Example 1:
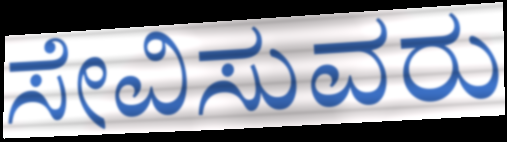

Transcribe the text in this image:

ಸೇವಿಸುವರು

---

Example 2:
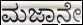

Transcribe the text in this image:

ಮಜಾನೇ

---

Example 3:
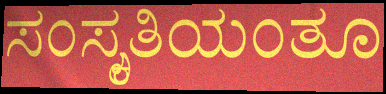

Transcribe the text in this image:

ಸಂಸ್ಕೃತಿಯಂತೂ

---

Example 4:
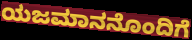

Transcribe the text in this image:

ಯಜಮಾನನೊಂದಿಗೆ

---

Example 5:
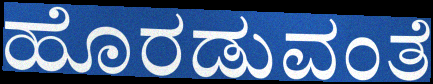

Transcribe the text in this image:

ಹೊರಡುವಂತೆ